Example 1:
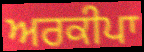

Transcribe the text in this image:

ਅਰਕੀਪਾ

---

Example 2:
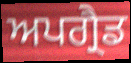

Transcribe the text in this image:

ਅਪਗ੍ਰੈਡ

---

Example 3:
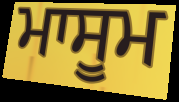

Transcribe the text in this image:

ਮਾਸੂਮ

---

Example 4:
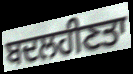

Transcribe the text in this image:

ਬਦਲਹੀਣਤਾ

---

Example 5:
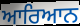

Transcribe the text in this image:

ਆਰਿਆਨ